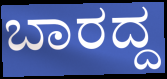
ಬಾರದ್ದ